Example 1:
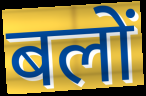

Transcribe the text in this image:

बलों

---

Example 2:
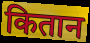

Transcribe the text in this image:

कितान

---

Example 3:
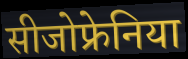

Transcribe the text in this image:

सीजोफ्रेनिया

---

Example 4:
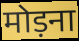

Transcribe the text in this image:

मोड़ना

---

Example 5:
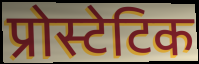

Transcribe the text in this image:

प्रोस्टेटिक